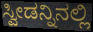
ಸ್ವೀಡನ್ನಿನಲ್ಲಿ